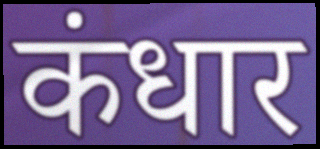
कंधार